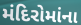
મંદિરોમાંના